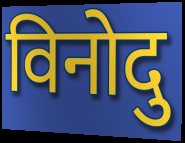
विनोदु